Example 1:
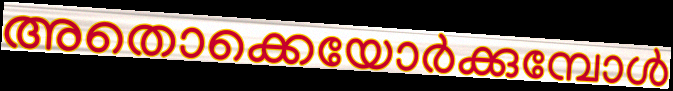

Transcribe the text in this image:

അതൊക്കെയോർക്കുമ്പോൾ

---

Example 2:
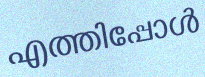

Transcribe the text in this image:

എത്തിപ്പോൾ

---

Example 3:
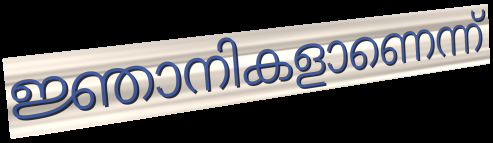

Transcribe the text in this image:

ജ്ഞാനികളാണെന്ന്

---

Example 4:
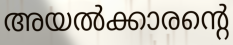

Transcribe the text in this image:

അയൽക്കാരന്റെ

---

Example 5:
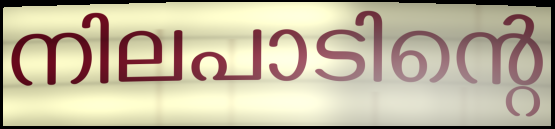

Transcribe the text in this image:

നിലപാടിന്റെ